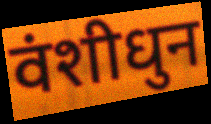
वंशीधुन